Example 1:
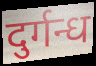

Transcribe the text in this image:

दुर्गन्‍ध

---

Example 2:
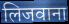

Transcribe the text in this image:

लिजवाना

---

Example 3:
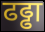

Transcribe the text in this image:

ढढ्ढा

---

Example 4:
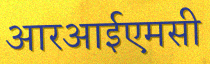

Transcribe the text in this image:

आरआईएमसी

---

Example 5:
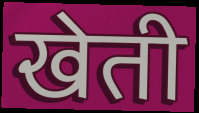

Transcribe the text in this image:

खेती